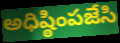
అధిష్ఠింపజేసి